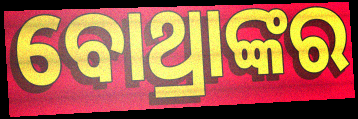
ବୋଥ୍ରାଙ୍କର